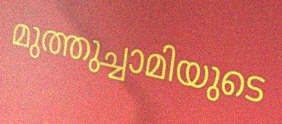
മുത്തുച്ചാമിയുടെ